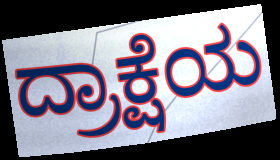
ದ್ರಾಕ್ಷೆಯ